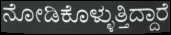
ನೋಡಿಕೊಳ್ಳುತ್ತಿದ್ದಾರೆ